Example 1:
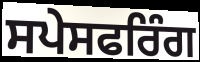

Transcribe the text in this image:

ਸਪੇਸਫਰਿੰਗ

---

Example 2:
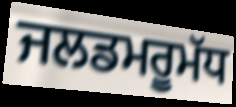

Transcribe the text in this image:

ਜਲਡਮਰੂਮੱਧ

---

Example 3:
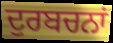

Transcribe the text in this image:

ਦੁਰਬਚਨਾਂ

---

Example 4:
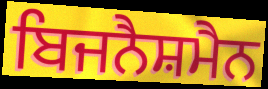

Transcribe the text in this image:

ਬਿਜਨੈਸ਼ਮੈਨ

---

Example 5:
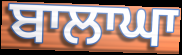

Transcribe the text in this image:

ਬਾਲਾਘਾ